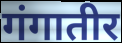
गंगातीर